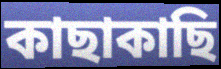
কাছাকাছি